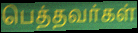
பெத்தவர்கள்